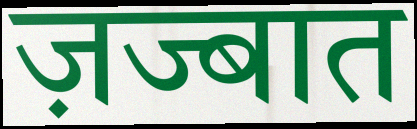
ज़ज्बात